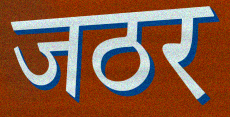
जठर